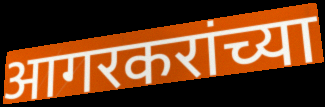
आगरकरांच्या